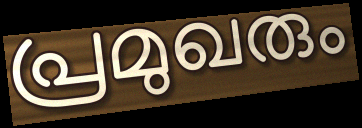
പ്രമുഖരും